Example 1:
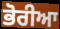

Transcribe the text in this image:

ਭੋਰੀਆ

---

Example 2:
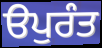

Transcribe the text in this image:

ੳਪੁਰੰਤ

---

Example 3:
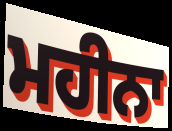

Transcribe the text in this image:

ਮਹੀਨਾ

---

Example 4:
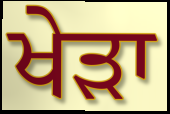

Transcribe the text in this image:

ਖੇੜਾ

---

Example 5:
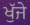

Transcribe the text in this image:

ਖੁੱਜੇ